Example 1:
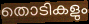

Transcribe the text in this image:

തൊടികളും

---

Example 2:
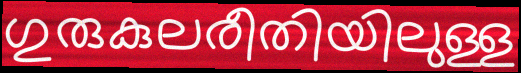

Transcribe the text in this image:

ഗുരുകുലരീതിയിലുള്ള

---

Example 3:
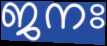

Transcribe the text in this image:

ജനഃ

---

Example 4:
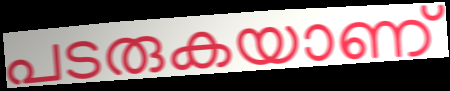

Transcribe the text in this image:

പടരുകയാണ്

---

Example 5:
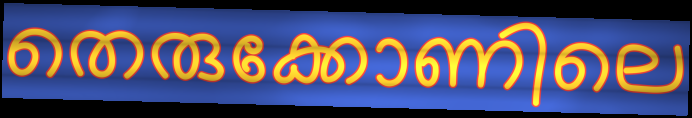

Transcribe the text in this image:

തെരുക്കോണിലെ